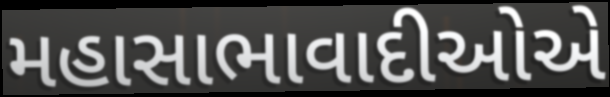
મહાસાભાવાદીઓએ